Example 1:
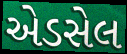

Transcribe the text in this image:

એડસેલ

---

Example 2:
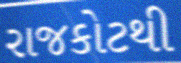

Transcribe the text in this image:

રાજકોટથી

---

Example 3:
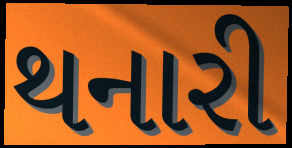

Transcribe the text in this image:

થનારી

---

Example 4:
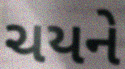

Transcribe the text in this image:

ચયને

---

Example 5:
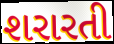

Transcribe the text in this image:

શરારતી